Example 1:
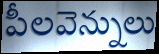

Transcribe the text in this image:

పీలవెన్నులు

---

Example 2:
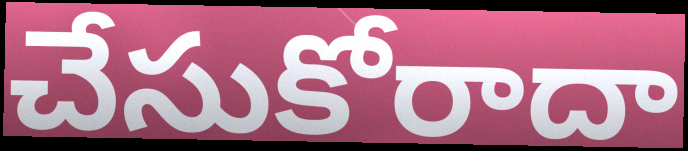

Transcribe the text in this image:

చేసుకోరాదా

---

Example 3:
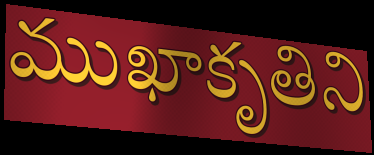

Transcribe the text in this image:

ముఖాకృతిని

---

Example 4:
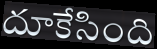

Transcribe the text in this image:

దూకేసింది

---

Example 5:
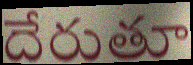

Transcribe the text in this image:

దేరుతూ